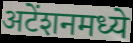
अटेंशनमध्ये